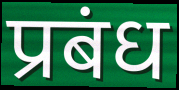
प्रबंध